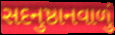
સદનુષ્ઠાનવાળું